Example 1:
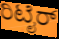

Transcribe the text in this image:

ರಿಟೈರ್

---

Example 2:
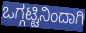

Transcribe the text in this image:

ಒಗ್ಗಟ್ಟಿನಿಂದಾಗಿ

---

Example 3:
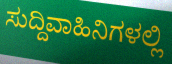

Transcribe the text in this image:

ಸುದ್ದಿವಾಹಿನಿಗಳಲ್ಲಿ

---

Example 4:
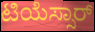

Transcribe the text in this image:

ಟಿಯೆಸ್ಸಾರ್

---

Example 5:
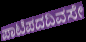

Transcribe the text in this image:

ಪಾಟಿಪದದಿವಸೇ